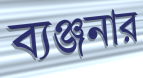
ব্যঞ্জনার